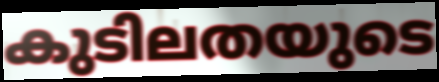
കുടിലതയുടെ